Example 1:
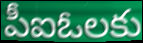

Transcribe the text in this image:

పీఐఓలకు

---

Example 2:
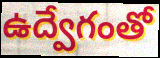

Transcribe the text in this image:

ఉద్వేగంతో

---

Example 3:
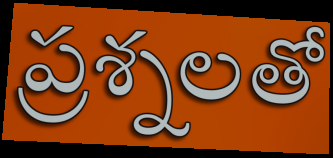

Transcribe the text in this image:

ప్రశ్నలతో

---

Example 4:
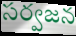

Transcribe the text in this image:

సర్వజన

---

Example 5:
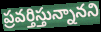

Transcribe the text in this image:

ప్రవర్తిస్తున్నానని